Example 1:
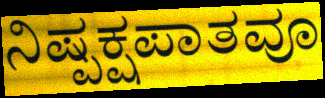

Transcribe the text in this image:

ನಿಷ್ಪಕ್ಷಪಾತವೂ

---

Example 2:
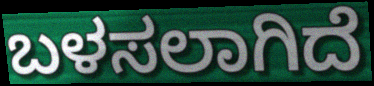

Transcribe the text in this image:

ಬಳಸಲಾಗಿದೆ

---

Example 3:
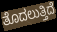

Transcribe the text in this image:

ತೊದಲುತ್ತಿದೆ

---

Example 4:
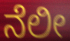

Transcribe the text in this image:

ನೆಲೀ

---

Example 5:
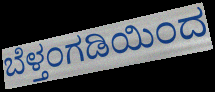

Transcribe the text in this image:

ಬೆಳ್ತಂಗಡಿಯಿಂದ